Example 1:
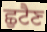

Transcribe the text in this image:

ਛੁਟੈਣ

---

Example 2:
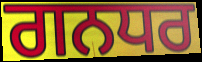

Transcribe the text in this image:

ਗਨਧਰ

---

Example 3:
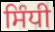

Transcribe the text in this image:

ਸਿੰਧੀ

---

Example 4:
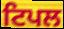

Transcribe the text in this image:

ਟਿਪਲ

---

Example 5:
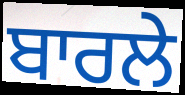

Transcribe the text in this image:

ਬਾਰਲੇ